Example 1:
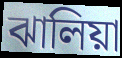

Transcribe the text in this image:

ঝালিয়া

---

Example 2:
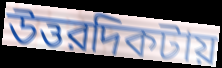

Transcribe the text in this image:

উত্তরদিকটায়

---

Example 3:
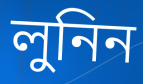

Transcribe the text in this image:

লুনিন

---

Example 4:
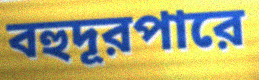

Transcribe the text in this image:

বহুদূরপারে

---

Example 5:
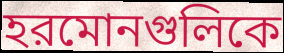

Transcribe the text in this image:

হরমোনগুলিকে